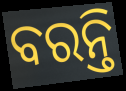
ବରନ୍ତି